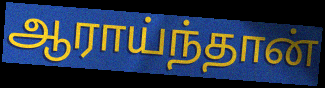
ஆராய்ந்தான்